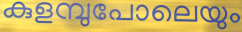
കുളമ്പുപോലെയും